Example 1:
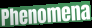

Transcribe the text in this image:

Phenomena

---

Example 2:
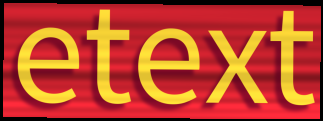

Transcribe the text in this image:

etext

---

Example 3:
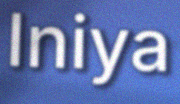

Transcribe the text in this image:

Iniya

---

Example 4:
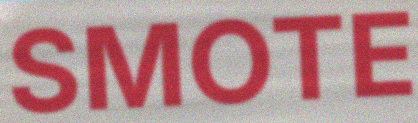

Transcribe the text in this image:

SMOTE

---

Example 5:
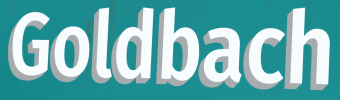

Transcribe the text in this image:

Goldbach